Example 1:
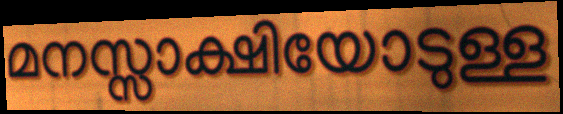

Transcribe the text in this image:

മനസ്സാക്ഷിയോടുള്ള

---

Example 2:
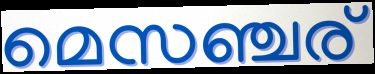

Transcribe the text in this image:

മെസഞ്ചര്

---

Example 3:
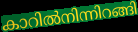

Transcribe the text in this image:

കാറിൽനിന്നിറങ്ങി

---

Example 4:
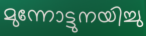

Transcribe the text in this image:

മുന്നോട്ടുനയിച്ചു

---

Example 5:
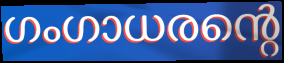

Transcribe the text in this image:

ഗംഗാധരന്റെ